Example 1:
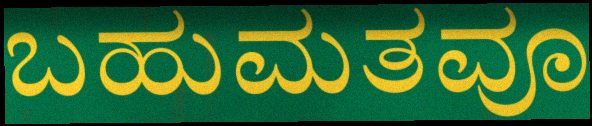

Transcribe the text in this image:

ಬಹುಮತವೂ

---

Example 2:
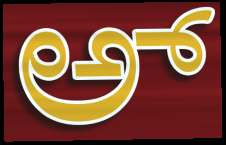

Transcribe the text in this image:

ಅ್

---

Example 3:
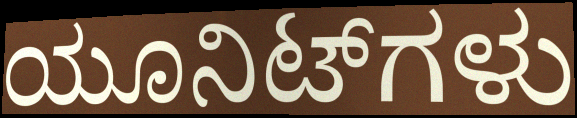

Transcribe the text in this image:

ಯೂನಿಟ್‌ಗಳು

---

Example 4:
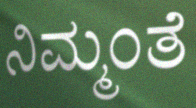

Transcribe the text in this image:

ನಿಮ್ಮಂತೆ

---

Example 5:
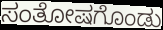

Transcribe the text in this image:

ಸಂತೋಷಗೊಂಡು